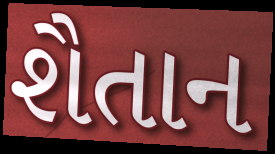
શૈતાન